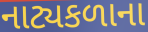
નાટ્યકળાના